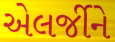
એલર્જીને